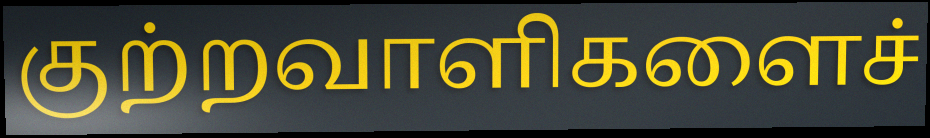
குற்றவாளிகளைச்